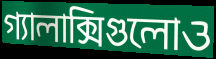
গ্যালাক্সিগুলোও